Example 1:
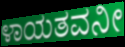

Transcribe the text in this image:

ಳಾಯತವನೀ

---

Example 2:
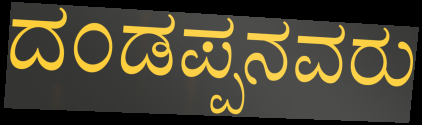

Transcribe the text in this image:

ದಂಡಪ್ಪನವರು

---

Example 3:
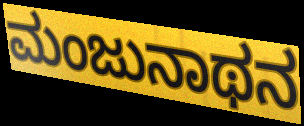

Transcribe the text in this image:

ಮಂಜುನಾಥನ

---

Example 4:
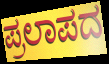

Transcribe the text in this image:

ಪ್ರಲಾಪದ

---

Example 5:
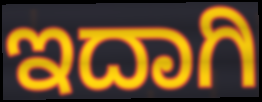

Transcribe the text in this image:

ಇದಾಗಿ